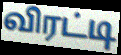
விரட்டி